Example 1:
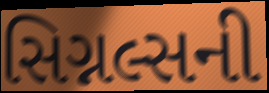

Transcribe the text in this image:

સિગ્નલ્સની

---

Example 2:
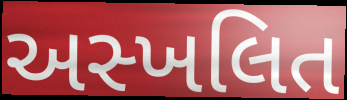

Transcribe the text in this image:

અસ્ખલિત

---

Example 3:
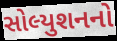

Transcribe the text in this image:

સોલ્યુશનનો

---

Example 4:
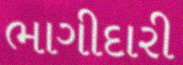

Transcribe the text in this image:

ભાગીદારી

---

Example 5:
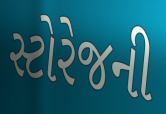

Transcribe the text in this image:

સ્ટોરેજની